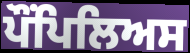
ਪੌਂਪਿਲਿਅਸ